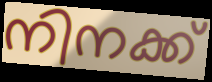
നിനക്ക്